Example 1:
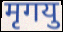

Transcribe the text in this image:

मृगयु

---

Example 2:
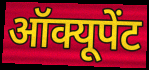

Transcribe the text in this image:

ऑक्यूपेंट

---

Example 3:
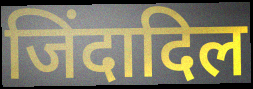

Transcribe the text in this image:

जिंदादिल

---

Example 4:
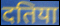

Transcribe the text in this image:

दतिया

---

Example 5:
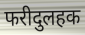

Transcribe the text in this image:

फरीदुलहक